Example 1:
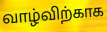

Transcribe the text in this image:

வாழ்விற்காக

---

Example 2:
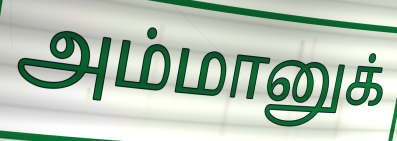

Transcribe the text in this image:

அம்மானுக்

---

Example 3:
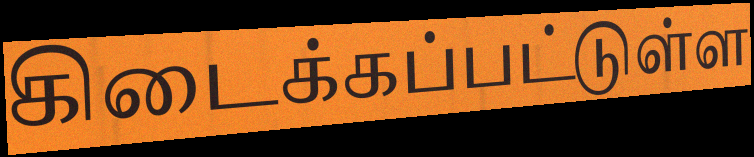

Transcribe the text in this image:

கிடைக்கப்பட்டுள்ள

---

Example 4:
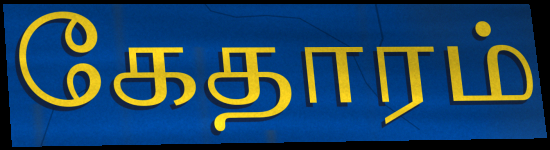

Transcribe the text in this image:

கேதாரம்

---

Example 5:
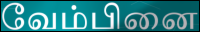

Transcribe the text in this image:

வேம்பினை